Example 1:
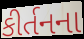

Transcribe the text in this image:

કીર્તનના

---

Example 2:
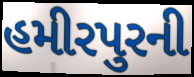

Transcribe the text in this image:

હમીરપુરની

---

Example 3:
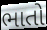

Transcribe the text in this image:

ભાતો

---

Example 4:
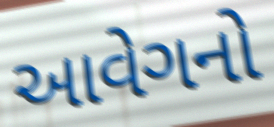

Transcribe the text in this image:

આવેગનો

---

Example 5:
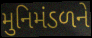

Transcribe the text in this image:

મુનિમંડળને